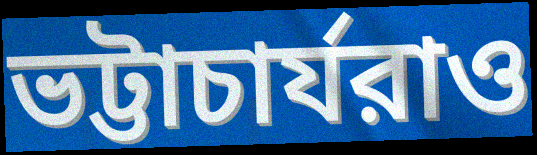
ভট্টাচার্যরাও